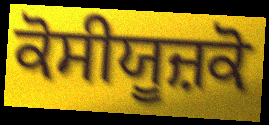
ਕੋਸੀਯੂਜ਼ਕੋ